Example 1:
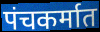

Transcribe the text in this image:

पंचकर्मात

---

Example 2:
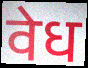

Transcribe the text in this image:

वेध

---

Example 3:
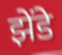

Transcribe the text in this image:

झेंडे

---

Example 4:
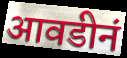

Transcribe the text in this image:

आवडीनं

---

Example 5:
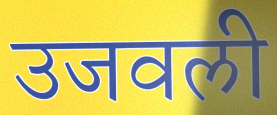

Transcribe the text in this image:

उजवली